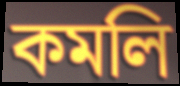
কমলি